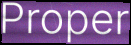
Proper